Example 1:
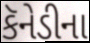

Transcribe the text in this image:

કૅનેડીના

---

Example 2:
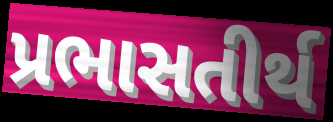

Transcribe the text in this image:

પ્રભાસતીર્થ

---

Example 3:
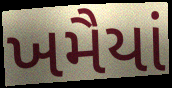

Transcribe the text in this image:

ખમૈયાં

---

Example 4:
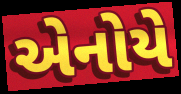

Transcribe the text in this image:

એનોયે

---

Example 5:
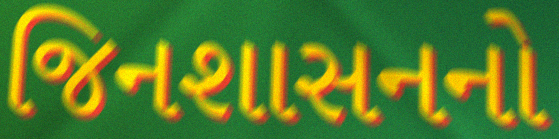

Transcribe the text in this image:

જિનશાસનનો